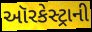
ઑરકેસ્ટ્રાની